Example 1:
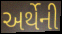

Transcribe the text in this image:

અર્થેની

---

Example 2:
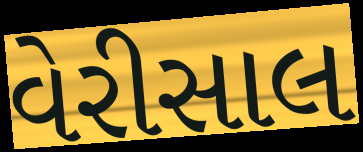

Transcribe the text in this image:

વેરીસાલ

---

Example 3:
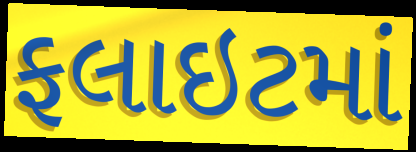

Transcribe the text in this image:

ફલાઇટમાં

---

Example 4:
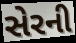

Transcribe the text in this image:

સેરની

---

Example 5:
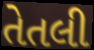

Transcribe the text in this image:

તેતલી